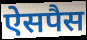
ऐसपैस